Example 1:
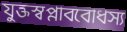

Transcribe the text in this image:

যুক্তস্বপ্নাববোধস্য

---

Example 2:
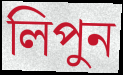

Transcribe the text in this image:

লিপুন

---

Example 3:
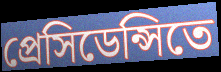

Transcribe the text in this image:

প্রেসিডেন্সিতে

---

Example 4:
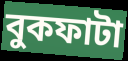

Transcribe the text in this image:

বুকফাটা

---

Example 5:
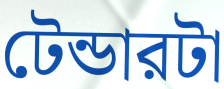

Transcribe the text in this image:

টেন্ডারটা